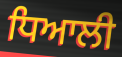
ਧਿਆਲੀ